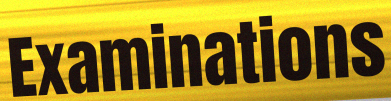
Examinations